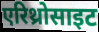
एरिथ्रोसाइट